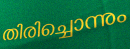
തിരിച്ചൊന്നും